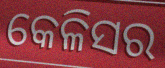
କେଳିସର